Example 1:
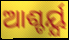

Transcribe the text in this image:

ଆଶ୍ଚର୍ୟ୍ଯ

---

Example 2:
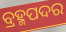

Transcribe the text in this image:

ବ୍ରହ୍ମପଦର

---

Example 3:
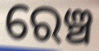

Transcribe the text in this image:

ରେଞ୍ଚ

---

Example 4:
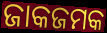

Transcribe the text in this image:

ଜାକଜମକ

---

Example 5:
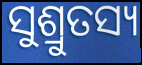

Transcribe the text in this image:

ସୁଶ୍ରୁତସ୍ୟ